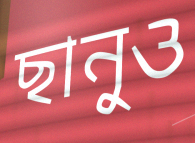
ছানুও